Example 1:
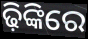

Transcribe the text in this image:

ଢ଼ିଙ୍କିରେ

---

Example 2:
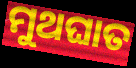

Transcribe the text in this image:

ମୁଥଘାତ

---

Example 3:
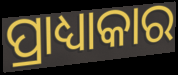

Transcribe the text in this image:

ପ୍ରାଧ୍ୟାକାର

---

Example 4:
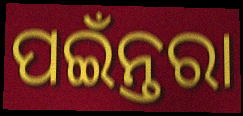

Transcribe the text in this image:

ପଇଁନ୍ତରା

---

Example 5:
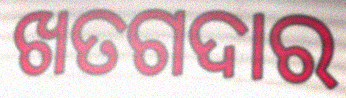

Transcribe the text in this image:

ଖତଗଦାର